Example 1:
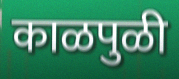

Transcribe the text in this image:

काळपुळी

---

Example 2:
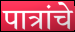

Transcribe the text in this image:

पात्रांचे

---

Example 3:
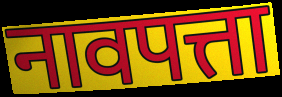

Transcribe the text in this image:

नावपत्ता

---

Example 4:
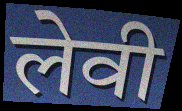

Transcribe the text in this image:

लेवी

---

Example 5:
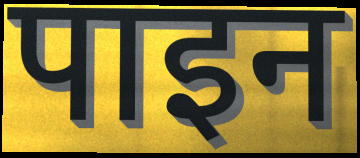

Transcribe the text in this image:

पाइन